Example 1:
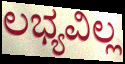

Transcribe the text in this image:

ಲಭ್ಯವಿಲ್ಲ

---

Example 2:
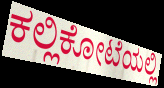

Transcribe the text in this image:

ಕಲ್ಲಿಕೋಟೆಯಲ್ಲಿ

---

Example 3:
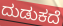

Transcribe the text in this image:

ದುಡುಕದೆ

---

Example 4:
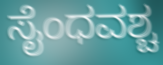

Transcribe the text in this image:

ಸೈಂಧವಶ್ಚ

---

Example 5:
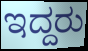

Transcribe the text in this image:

ಇದ್ದರು